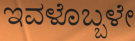
ಇವಳೊಬ್ಬಳೇ